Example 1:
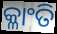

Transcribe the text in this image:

କ୍ଳାଂତି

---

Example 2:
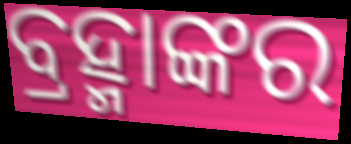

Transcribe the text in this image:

ବ୍ରହ୍ମାଙ୍କର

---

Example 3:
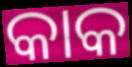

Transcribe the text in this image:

କାକ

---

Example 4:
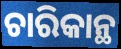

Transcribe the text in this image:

ଚାରିକାନ୍ଥ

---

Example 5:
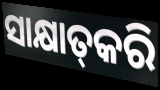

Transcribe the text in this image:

ସାକ୍ଷାତ୍‌କରି